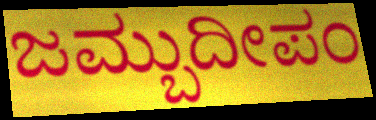
ಜಮ್ಬುದೀಪಂ